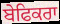
ਬੇਫਿਕਰਾ